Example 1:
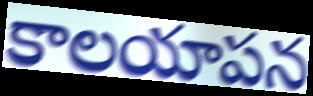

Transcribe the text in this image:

కాలయాపన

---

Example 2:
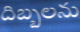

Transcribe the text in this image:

దిబ్బలను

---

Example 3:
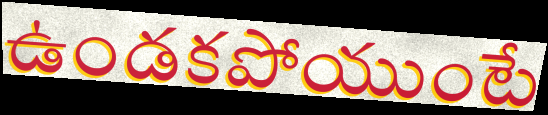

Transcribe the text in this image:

ఉండకపోయుంటే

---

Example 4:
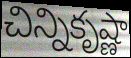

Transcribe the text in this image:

చిన్నికృష్ణా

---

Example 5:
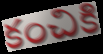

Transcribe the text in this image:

కంచికి